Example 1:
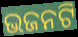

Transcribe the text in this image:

ଭଜନଟି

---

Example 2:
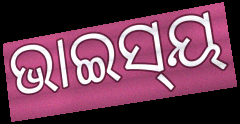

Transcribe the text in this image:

ଭାଇସ୍‌ୟ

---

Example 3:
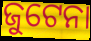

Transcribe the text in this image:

ଜୁଟେନା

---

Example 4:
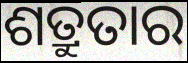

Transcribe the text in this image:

ଶତ୍ରୁତାର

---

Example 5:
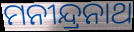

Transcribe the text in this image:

ମନୀନ୍ଦ୍ରନାଥ